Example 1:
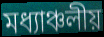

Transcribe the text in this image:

মধ্যাঞ্চলীয়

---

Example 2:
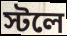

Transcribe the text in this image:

স্টলে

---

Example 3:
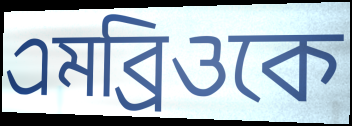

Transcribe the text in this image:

এমব্রিওকে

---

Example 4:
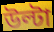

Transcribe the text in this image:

উল্টা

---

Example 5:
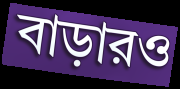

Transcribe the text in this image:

বাড়ারও